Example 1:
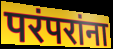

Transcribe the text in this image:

परंपरांना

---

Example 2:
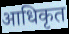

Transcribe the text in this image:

आधिकृत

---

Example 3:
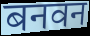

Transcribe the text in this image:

बनवन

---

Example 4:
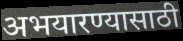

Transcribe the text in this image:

अभयारण्यासाठी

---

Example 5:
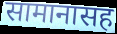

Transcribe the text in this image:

सामानासह